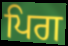
ਪਿਗ